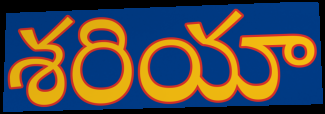
శరియా